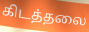
கிடத்தலை